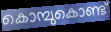
കൊമ്പുകൊണ്ട്